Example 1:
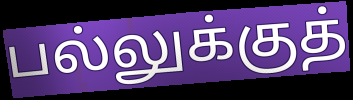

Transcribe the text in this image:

பல்லுக்குத்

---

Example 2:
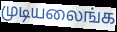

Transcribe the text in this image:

முடியலைங்க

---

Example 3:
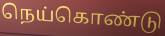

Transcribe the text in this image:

நெய்கொண்டு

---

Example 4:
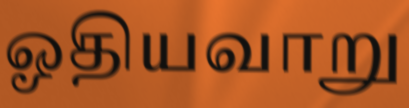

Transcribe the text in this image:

ஓதியவாறு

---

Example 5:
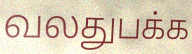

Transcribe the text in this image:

வலதுபக்க